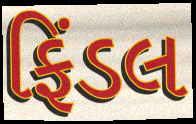
ફિંડલ